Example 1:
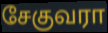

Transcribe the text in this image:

சேகுவரா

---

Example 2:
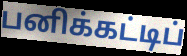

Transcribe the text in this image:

பனிக்கட்டிப்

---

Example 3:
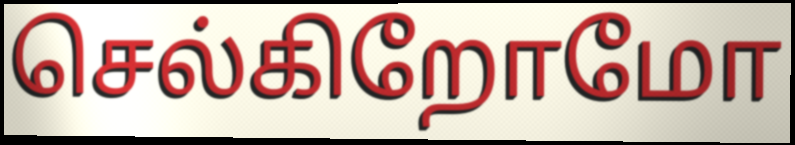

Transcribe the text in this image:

செல்கிறோமோ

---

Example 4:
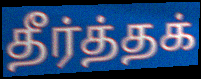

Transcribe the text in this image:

தீர்த்தக்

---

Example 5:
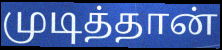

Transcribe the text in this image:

முடித்தான்